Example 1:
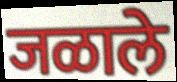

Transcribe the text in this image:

जळाले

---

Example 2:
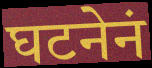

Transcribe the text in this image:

घटनेनं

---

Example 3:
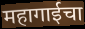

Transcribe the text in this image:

महागाईचा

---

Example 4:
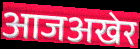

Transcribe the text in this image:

आजअखेर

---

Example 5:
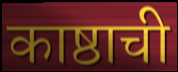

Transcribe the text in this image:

काष्ठाची